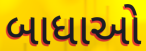
બાધાઓ